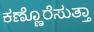
ಕಣ್ಣೊರೆಸುತ್ತಾ